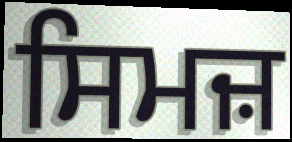
ਸਿਮਜ਼